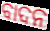
ବାଦନ